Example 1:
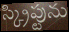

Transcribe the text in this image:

స్క్రిప్టును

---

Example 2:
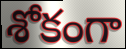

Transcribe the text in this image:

శోకంగా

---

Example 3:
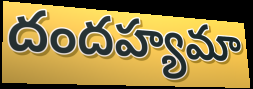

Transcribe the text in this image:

దందహ్యమా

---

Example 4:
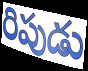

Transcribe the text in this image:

రిపుడు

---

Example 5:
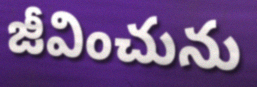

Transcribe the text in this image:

జీవించును